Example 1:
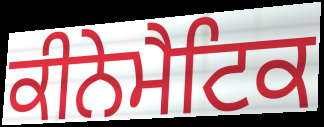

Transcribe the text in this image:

ਕੀਨੇਮੈਟਿਕ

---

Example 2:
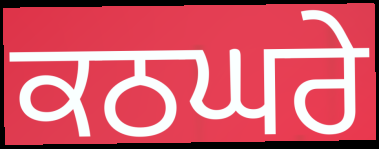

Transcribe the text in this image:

ਕਠਘਰੇ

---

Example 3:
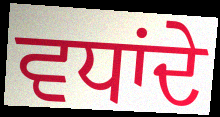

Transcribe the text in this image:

ਵਧਾਂਦੇ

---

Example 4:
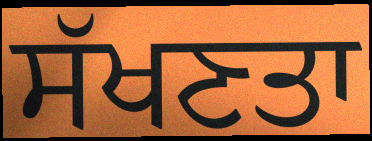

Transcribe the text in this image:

ਸੱਖਣਤਾ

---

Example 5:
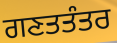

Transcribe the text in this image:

ਗਣਤਤੰਤਰ